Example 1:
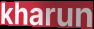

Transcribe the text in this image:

kharun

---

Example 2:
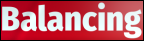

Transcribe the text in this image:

Balancing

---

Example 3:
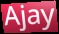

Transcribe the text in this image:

Ajay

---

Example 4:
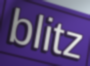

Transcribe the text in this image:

blitz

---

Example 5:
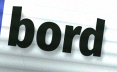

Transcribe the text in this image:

bord